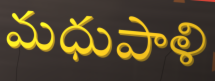
మధుపాళి